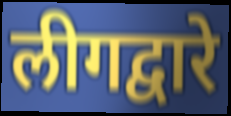
लीगद्वारे